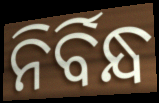
ନିର୍ବିନ୍ଧ